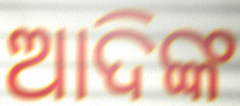
ଆଦିଙ୍କ